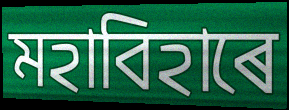
মহাবিহাৰে